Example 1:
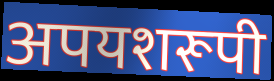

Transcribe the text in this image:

अपयशरूपी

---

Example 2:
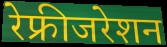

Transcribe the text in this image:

रेफ्रीजरेशन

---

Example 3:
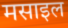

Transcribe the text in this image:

मसाइल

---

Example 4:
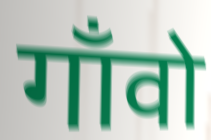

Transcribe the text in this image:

गाँवो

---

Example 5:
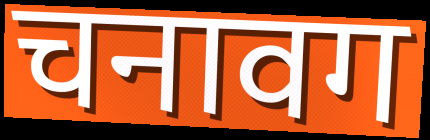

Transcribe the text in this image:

चनावग